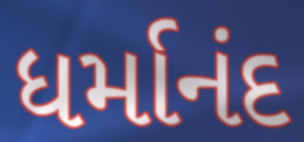
ધર્માનંદ